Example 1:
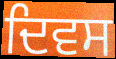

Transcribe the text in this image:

ਦਿਵਸ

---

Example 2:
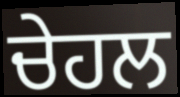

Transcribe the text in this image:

ਚੇਹਲ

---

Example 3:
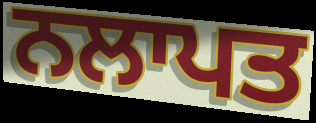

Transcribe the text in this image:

ਨਲਾਪਤ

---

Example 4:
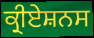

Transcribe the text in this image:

ਕ੍ਰੀਏਸ਼ਨਸ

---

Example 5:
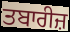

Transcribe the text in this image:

ਤਬਾਰੀਜ਼